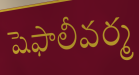
షెఫాలీవర్మ